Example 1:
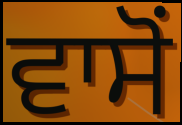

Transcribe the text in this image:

ਵਾਸੋਂ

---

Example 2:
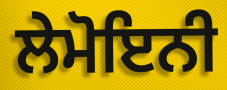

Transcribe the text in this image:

ਲੇਮੋਇਨੀ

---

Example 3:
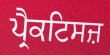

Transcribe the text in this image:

ਪ੍ਰੈਕਟਿਸਜ਼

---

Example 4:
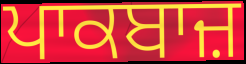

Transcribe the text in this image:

ਪਾਕਬਾਜ਼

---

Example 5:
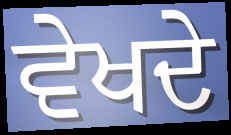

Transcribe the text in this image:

ਵੇਖਦੇ